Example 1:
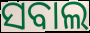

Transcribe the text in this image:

ସବାଲ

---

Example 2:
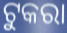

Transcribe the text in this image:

ଟୁକରା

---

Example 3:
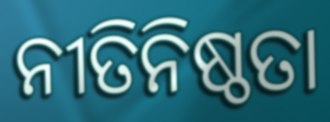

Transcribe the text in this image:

ନୀତିନିଷ୍ଠତା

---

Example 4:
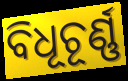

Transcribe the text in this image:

ବିଧୂଚୂର୍ଣ୍ଣ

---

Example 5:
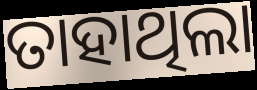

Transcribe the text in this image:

ତାହାଥିଲା